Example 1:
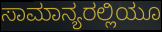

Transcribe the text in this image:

ಸಾಮಾನ್ಯರಲ್ಲಿಯೂ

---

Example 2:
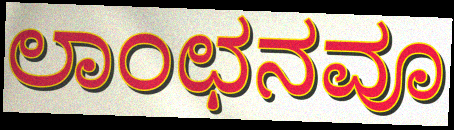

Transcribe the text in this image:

ಲಾಂಛನವೂ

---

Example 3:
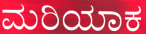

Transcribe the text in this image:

ಮರಿಯಾಕ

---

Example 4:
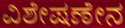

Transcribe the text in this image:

ವಿಶೇಷಣೇನ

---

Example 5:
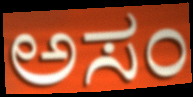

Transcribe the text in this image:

ಅಸಂ